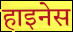
हाइनेस